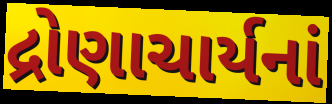
દ્રોણાચાર્યનાં